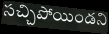
సచ్చిపోయిండని